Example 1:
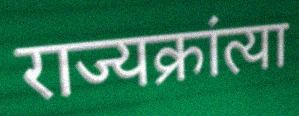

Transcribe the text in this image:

राज्यक्रांत्या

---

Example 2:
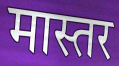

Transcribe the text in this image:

मास्तर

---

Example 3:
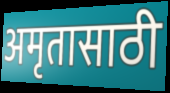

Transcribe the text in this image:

अमृतासाठी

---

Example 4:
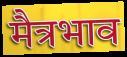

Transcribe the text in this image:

मैत्रभाव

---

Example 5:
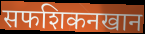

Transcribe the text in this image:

सफशिकनखान